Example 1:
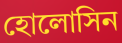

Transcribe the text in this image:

হোলোসিন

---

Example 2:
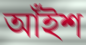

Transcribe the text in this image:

আঁইশ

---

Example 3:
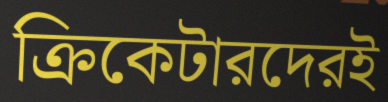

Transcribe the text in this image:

ক্রিকেটারদেরই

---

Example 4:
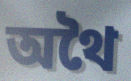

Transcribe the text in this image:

অথৈ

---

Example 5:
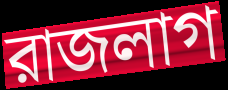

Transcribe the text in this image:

রাজলাগ